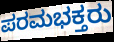
ಪರಮಭಕ್ತರು